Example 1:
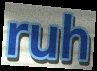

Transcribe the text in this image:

ruh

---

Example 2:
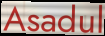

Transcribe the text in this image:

Asadul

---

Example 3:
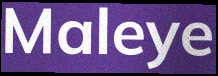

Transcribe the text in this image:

Maleye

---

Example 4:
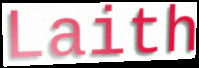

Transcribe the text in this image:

Laith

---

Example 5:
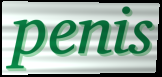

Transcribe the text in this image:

penis